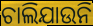
ଚାଲିଯାଉନି